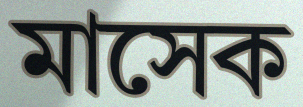
মাসেক